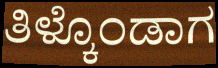
ತಿಳ್ಕೊಂಡಾಗ